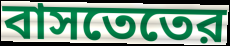
বাসতেতের